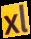
xl